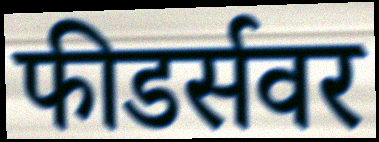
फीडर्सवर